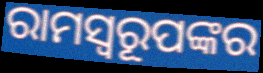
ରାମସ୍ୱରୂପଙ୍କର